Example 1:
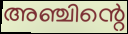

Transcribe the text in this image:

അഞ്ചിന്റെ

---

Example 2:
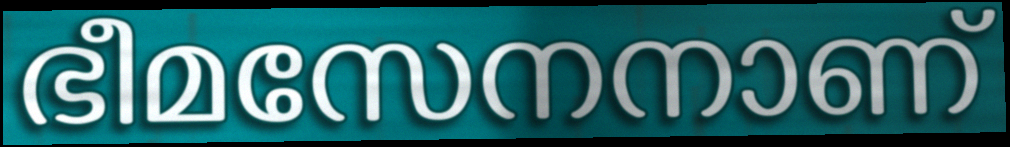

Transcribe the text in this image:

ഭീമസേനനാണ്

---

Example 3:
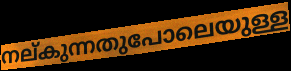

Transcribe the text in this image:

നല്കുന്നതുപോലെയുള്ള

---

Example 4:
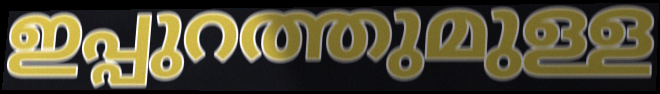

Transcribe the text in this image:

ഇപ്പുറത്തുമുള്ള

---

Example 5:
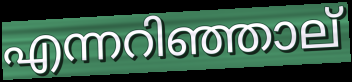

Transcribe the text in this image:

എന്നറിഞ്ഞാല്